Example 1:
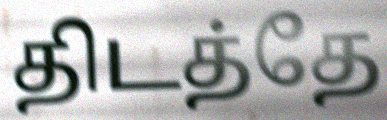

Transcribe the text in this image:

திடத்தே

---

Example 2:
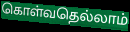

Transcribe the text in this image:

கொள்வதெல்லாம்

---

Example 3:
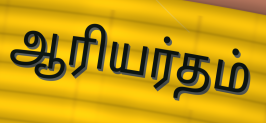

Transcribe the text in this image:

ஆரியர்தம்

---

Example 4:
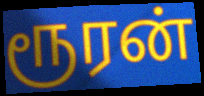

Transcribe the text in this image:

ரூரன்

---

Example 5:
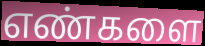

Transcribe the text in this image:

எண்களை